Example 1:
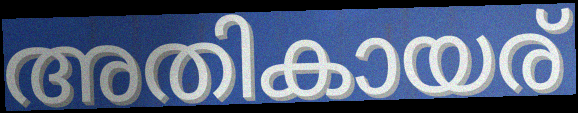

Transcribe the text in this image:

അതികായര്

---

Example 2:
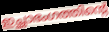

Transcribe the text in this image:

ഇച്ഛാഭംഗത്തിന്റെ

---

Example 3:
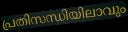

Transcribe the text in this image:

പ്രതിസന്ധിയിലാവും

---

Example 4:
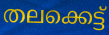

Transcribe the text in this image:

തലക്കെട്ട്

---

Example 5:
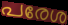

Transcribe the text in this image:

പരേശ